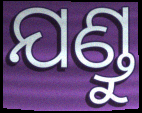
ଯଣ୍ଡୁ